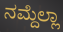
ನಮ್ದೆಲ್ಲಾ